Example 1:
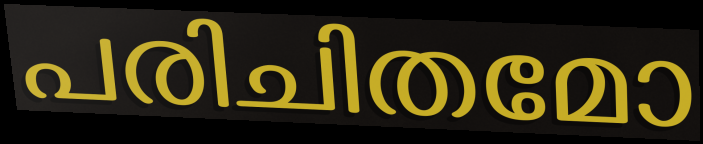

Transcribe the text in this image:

പരിചിതമോ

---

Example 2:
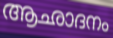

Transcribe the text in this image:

ആഛാദനം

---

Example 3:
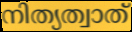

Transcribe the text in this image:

നിത്യത്വാത്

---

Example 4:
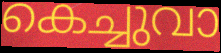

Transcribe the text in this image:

കെച്ചുവാ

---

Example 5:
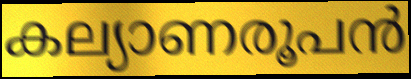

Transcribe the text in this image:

കല്യാണരൂപൻ